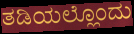
ತಡಿಯಲ್ಲೊಂದು